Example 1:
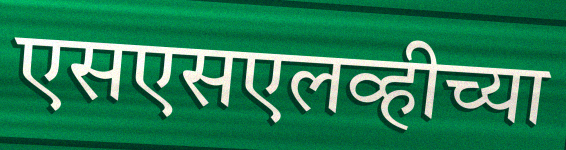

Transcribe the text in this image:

एसएसएलव्हीच्या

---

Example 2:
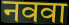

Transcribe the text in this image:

नववा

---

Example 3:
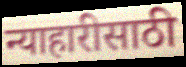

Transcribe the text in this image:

न्याहारीसाठी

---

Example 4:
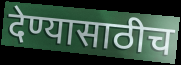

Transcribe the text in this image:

देण्यासाठीच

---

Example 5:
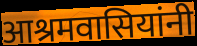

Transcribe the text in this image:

आश्रमवासियांनी